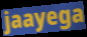
jaayega